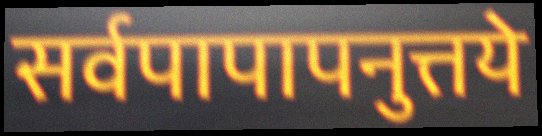
सर्वपापापनुत्तये